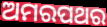
ଅମରପଥର